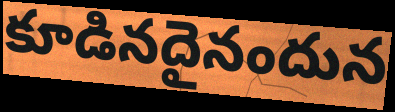
కూడినదైనందున